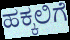
ಹಕ್ಕಲಿಗೆ